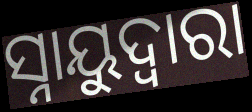
ସ୍ନାୟୁଦ୍ଵାରା